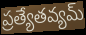
ప్రత్యేతవ్యమ్